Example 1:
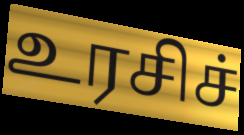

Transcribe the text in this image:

உரசிச்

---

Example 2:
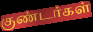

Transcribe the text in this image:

குண்டர்கள்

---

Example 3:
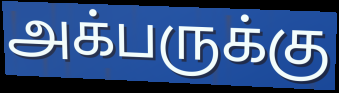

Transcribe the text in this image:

அக்பருக்கு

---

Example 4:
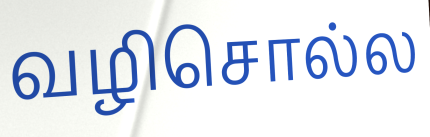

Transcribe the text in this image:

வழிசொல்ல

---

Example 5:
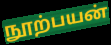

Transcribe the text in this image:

நூற்பயன்